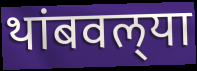
थांबवल्या